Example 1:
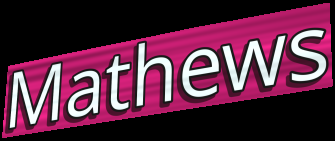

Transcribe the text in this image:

Mathews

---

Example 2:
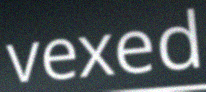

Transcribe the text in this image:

vexed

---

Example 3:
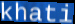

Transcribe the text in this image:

khati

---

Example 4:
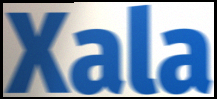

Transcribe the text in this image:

Xala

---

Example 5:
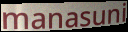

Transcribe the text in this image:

manasuni